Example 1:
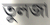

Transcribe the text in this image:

তুলজা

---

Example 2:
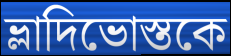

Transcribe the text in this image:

ভ্লাদিভোস্তকে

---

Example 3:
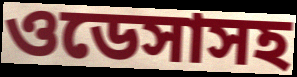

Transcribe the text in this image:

ওডেসাসহ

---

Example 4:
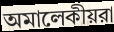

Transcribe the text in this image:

অমালেকীয়রা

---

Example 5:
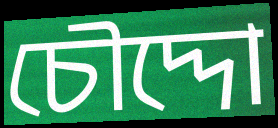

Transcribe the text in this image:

চৌদ্দো